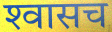
श्‍वासच